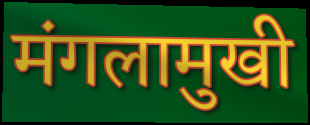
मंगलामुखी